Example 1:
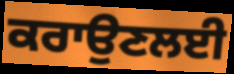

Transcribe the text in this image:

ਕਰਾਉਣਲਈ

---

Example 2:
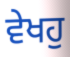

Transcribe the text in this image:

ਵੇਖਹੁ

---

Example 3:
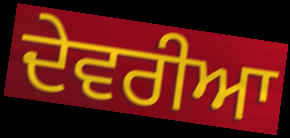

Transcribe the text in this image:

ਦੇਵਰੀਆ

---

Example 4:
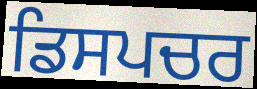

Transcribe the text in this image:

ਡਿਸਪਚਰ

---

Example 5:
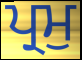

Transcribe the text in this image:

ਪ੍ਰਮੁ